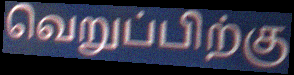
வெறுப்பிற்கு